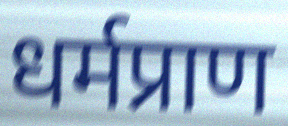
धर्मप्राण